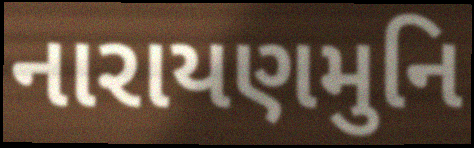
નારાયણમુનિ